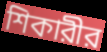
শিকারীর